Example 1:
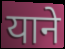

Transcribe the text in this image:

याने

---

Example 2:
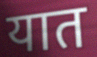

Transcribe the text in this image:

यात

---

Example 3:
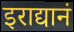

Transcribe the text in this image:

इराद्यानं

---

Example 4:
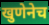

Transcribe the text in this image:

खुणेनेच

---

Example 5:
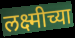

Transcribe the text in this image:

लक्ष्मीच्या